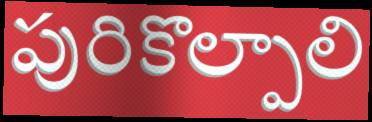
పురికొల్పాలి